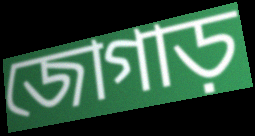
জোগাড়